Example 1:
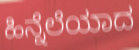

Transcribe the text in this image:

ಹಿನ್ನೆಲೆಯಾದ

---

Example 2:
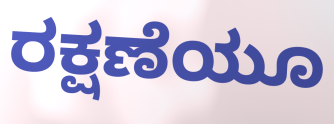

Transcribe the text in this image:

ರಕ್ಷಣೆಯೂ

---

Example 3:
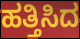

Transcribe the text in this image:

ಹತ್ತಿಸಿದ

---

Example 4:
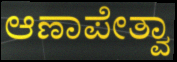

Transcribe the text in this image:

ಆಣಾಪೇತ್ವಾ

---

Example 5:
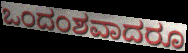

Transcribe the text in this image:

ಒಂದಂಶವಾದರೂ